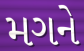
મગને